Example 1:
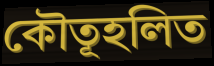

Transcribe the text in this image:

কৌতূহলিত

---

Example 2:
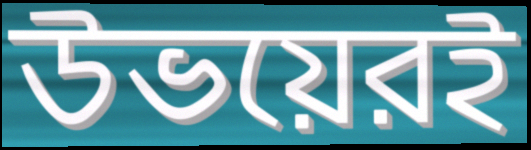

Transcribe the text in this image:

উভয়েরই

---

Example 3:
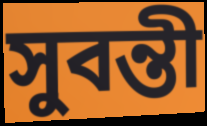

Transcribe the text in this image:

সুবন্তী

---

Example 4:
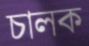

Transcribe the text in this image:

চালক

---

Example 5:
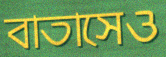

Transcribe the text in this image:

বাতাসেও